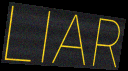
LIAR